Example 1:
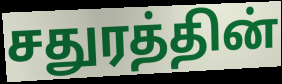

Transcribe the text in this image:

சதுரத்தின்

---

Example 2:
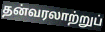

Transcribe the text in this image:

தன்வரலாற்றுப்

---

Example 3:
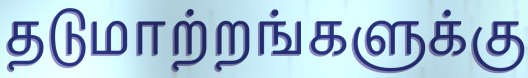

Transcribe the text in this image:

தடுமாற்றங்களுக்கு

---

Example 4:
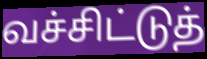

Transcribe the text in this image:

வச்சிட்டுத்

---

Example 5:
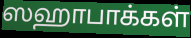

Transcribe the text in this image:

ஸஹாபாக்கள்